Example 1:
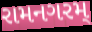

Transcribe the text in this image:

રામનગરમ્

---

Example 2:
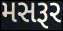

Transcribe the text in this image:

મસરૂર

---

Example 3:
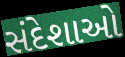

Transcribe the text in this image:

સંદેશાઓ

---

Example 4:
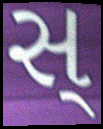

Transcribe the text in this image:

સ્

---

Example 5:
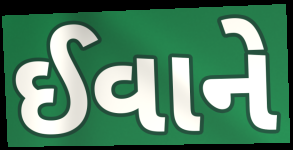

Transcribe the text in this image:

ઈવાને